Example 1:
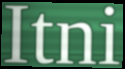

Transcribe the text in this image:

Itni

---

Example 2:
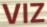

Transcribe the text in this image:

VIZ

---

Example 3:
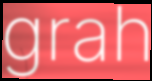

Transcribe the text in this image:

grah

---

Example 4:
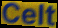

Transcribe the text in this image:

Celt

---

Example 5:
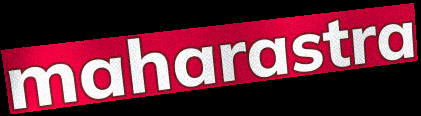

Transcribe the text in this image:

maharastra